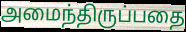
அமைந்திருப்பதை